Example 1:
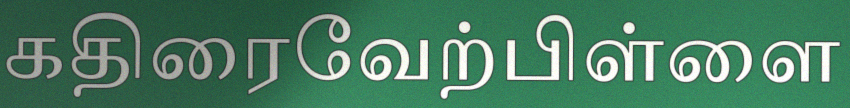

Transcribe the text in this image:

கதிரைவேற்பிள்ளை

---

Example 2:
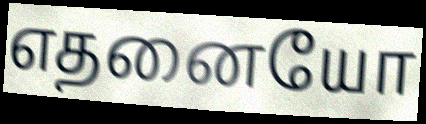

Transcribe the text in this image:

எதனையோ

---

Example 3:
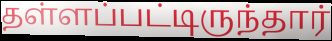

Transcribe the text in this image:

தள்ளப்பட்டிருந்தார்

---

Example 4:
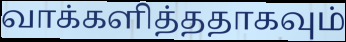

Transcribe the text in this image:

வாக்களித்ததாகவும்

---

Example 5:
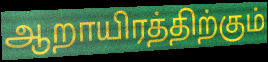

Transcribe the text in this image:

ஆறாயிரத்திற்கும்